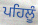
ਪਹਿਲੂੰ